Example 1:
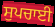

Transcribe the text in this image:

ਸੁਪਚਾਈ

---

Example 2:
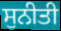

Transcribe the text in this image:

ਸੁਨੀਤੀ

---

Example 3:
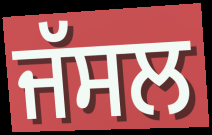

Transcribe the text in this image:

ਜੱਸਲ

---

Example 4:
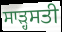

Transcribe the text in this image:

ਸਾੜ੍ਹਸਤੀ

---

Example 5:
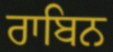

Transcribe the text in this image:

ਰਾਬਿਨ